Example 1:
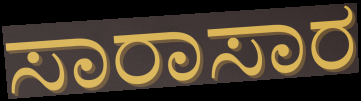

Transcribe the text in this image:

ಸಾರಾಸಾರ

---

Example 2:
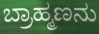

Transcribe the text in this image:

ಬ್ರಾಹ್ಮಣನು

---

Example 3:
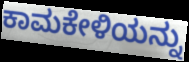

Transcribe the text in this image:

ಕಾಮಕೇಳಿಯನ್ನು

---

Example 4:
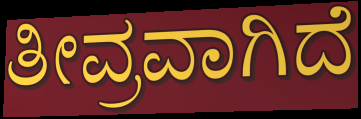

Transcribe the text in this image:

ತೀವ್ರವಾಗಿದೆ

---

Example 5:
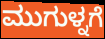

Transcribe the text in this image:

ಮುಗುಳ್ನಗೆ